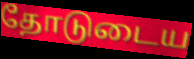
தோடுடைய